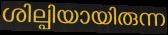
ശില്പിയായിരുന്ന